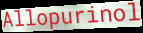
Allopurinol